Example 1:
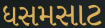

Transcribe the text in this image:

ધસમસાટ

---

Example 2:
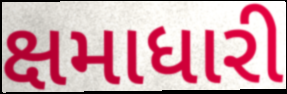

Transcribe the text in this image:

ક્ષમાધારી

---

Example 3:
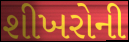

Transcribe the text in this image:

શીખરોની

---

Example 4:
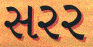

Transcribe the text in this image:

સરર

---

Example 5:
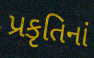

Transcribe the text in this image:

પ્રકૃતિનાં